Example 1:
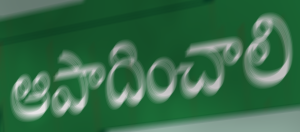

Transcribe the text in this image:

ఆపాదించాలి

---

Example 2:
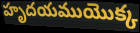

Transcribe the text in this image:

హృదయముయొక్క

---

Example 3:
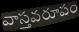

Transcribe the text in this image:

వాస్తవరూపం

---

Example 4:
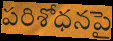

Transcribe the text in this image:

పరిశోధనపై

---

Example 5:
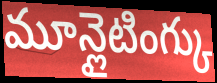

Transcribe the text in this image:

మూన్లైటింగ్కు